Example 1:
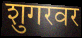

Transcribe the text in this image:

शुगरवर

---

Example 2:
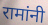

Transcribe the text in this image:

रामांनी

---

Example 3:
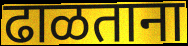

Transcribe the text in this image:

ढाळताना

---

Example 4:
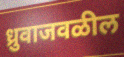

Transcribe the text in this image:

ध्रुवाजवळील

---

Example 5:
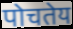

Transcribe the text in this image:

पोचतेय